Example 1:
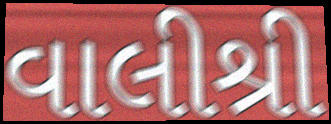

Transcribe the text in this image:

વાલીશ્રી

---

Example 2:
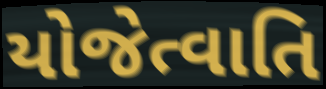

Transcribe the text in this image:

યોજેત્વાતિ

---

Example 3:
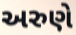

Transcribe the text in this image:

અરુણે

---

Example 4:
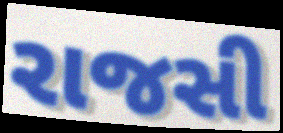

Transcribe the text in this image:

રાજસી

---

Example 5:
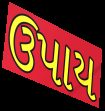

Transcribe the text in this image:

ઉપાય